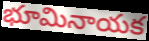
భూమినాయక